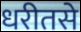
धरीतसे